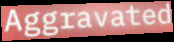
Aggravated